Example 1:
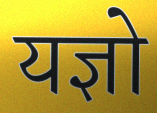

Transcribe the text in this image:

यज्ञो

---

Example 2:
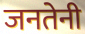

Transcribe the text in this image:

जनतेनी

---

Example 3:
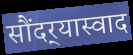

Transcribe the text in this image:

सौंदर्यास्वाद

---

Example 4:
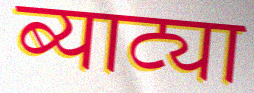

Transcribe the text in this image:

ब्याट्या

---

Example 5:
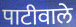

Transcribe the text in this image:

पाटीवाले